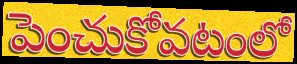
పెంచుకోవటంలో